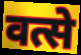
वत्से